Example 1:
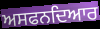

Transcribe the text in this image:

ਅਸਫਨਦਿਆਰ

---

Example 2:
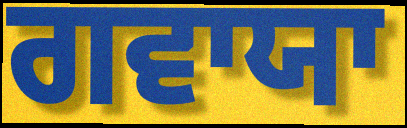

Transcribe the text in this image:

ਗਵਾਯਾ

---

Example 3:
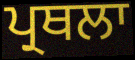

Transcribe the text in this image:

ਪ੍ਰਥਲਾ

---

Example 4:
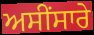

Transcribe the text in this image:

ਅਸੀਂਸਾਰੇ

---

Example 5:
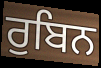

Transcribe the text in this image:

ਰੁਬਿਨ